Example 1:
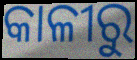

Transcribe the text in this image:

କାଳୀରୁ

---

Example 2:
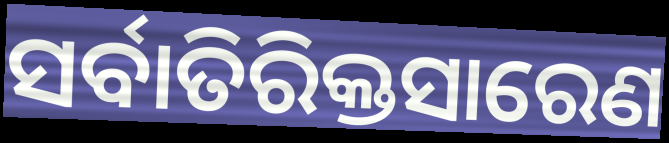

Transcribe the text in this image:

ସର୍ବାତିରିକ୍ତସାରେଣ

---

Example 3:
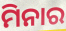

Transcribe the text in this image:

ମିନାର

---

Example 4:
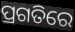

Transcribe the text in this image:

ପ୍ରଗତିରେ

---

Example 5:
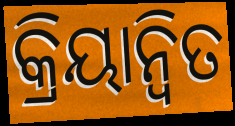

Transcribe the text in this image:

କ୍ରିୟାନ୍ୱିତ